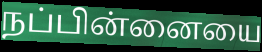
நப்பின்னையை